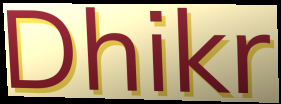
Dhikr